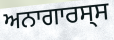
ਅਨਾਗਾਰਸ੍ਸ